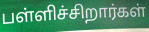
பள்ளிச்சிறார்கள்